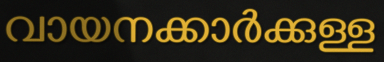
വായനക്കാർക്കുള്ള